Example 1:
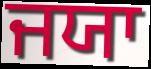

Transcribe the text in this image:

ਜਯਾ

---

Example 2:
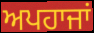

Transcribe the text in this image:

ਅਪਹਾਜਾਂ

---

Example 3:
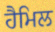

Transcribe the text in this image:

ਹੈਮਿਲ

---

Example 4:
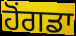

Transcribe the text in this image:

ਹੋਂਗਡਾ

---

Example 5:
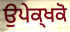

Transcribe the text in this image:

ਉਪੇਕ੍ਖਕੋ